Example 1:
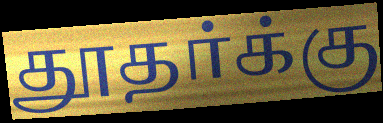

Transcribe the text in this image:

தூதர்க்கு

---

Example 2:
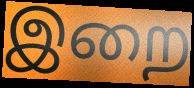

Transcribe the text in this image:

இறை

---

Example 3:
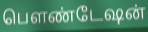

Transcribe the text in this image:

பௌண்டேஷன்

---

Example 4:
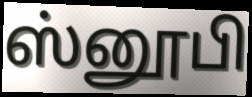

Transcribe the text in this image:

ஸ்னூபி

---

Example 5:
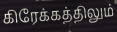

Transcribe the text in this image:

கிரேக்கத்திலும்